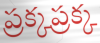
ప్రక్కప్రక్క